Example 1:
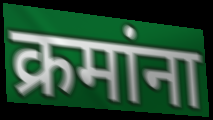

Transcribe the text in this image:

क्रमांना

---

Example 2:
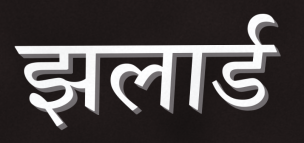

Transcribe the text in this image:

झलार्ड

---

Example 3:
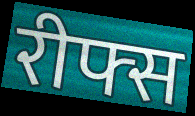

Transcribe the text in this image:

रीफ्स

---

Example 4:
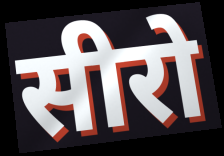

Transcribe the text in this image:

सीरो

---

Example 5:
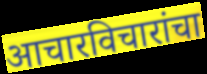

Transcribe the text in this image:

आचारविचारांचा